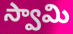
స్వామి